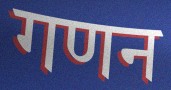
गणन